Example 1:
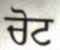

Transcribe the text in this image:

ਚੋਟ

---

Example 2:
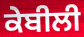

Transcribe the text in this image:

ਕੇਬੀਲੀ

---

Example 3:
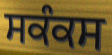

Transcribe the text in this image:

ਸਕੰਕਸ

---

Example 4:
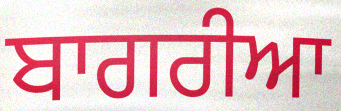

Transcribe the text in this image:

ਬਾਗਰੀਆ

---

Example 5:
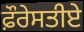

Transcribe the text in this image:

ਫ਼ੌਰੇਸਤੀਏ